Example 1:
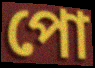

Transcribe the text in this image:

পো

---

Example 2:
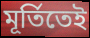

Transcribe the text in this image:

মূর্তিতেই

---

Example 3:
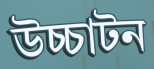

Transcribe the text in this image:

উচ্চাটন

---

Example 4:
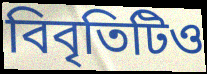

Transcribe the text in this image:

বিবৃতিটিও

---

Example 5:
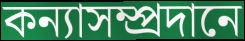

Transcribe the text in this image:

কন্যাসম্প্রদানে